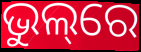
ଭୁଲ୍‌ରେ